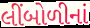
લીંબોળીનાં